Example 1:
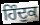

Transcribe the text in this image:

ਹਿੰਦੁਕ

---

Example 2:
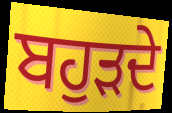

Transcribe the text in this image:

ਬਹੁੜਦੇ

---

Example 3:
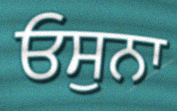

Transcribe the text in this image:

ਓਸੁਨਾ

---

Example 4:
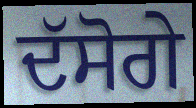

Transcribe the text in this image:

ਦੱਸੋਗੇ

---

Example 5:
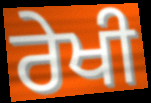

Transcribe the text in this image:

ਰੇਖੀ